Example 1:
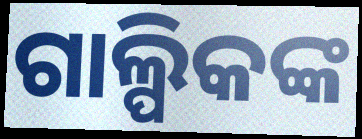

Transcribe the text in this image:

ଗାଲ୍ପିକଙ୍କ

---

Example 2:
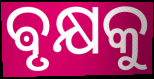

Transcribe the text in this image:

ଵୃକ୍ଷକୁ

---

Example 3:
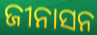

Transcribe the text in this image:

ଜୀନାସନ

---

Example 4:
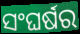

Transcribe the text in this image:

ସଂଘର୍ଷର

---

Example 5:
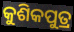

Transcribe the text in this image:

କୁଶିକପୁତ୍ର